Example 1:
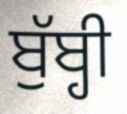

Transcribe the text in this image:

ਬੁੱਬ੍ਹੀ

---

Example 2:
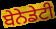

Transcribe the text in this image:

ਬੇਨੇਡੇਟੀ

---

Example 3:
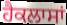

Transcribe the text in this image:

ਹੈਕਲਾਸਾਂ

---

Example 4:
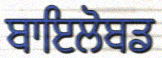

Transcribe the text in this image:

ਬਾਇਲੋਬਡ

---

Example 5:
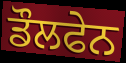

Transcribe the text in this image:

ਡੌਲਫੇਨ